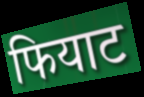
फियाट